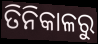
ତିନିକାଳରୁ